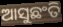
ଆସୁଛଂତି